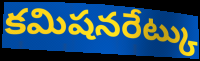
కమిషనరేట్కు